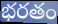
భరతం